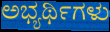
ಅಭ್ಯರ್ಥಿಗಳು